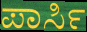
ಪಾರ್ಸಿ